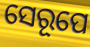
ସେରୂପେ